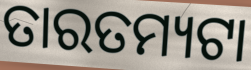
ତାରତମ୍ୟଟା